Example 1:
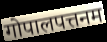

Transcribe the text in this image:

गोपालपत्तनम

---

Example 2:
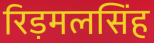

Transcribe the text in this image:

रिड़मलसिंह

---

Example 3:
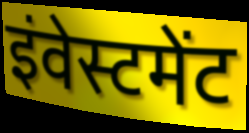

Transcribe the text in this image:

इंवेस्टमेंट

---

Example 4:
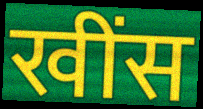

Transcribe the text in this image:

खींस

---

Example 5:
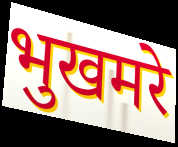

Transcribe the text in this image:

भुखमरे